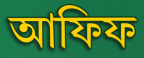
আফিফ